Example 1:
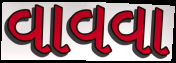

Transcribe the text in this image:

વાવવા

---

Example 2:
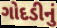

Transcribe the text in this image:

ગોદડીનું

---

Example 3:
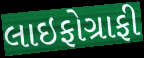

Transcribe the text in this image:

લાઇફોગ્રાફી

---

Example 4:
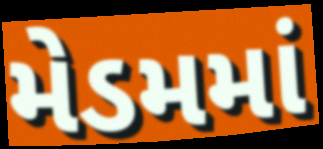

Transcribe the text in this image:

મેડમમાં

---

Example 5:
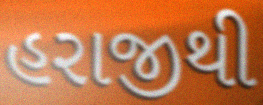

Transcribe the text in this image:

હરાજીથી